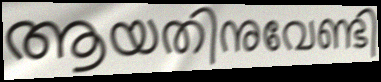
ആയതിനുവേണ്ടി